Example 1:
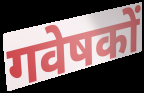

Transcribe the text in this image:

गवेषकों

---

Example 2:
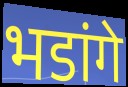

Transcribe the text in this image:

भडांगे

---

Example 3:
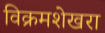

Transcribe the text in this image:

विक्रमशेखरा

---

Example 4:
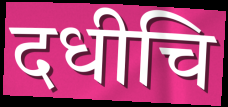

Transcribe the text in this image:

दधीचि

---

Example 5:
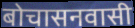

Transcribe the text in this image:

बोचासनवासी